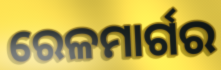
ରେଳମାର୍ଗର